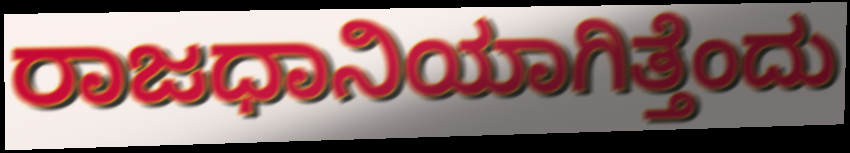
ರಾಜಧಾನಿಯಾಗಿತ್ತೆಂದು